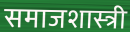
समाजशास्त्री